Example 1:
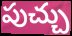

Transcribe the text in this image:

పుచ్చు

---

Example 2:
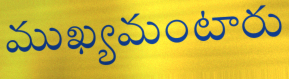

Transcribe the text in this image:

ముఖ్యమంటారు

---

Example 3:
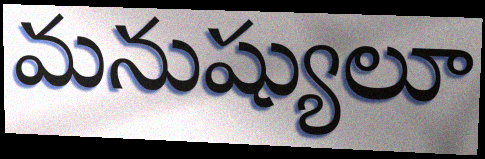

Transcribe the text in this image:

మనుష్యులూ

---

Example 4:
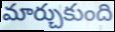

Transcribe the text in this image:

మార్చుకుంది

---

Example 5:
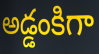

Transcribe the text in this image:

అడ్డంకిగా